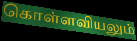
கொள்ளவியலும்